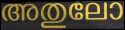
അതുലോ